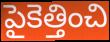
పైకెత్తించి